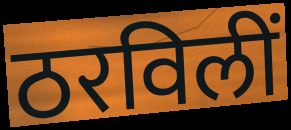
ठरविलीं